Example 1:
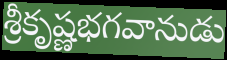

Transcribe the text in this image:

శ్రీకృష్ణభగవానుడు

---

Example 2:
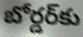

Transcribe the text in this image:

బోర్డర్‌కు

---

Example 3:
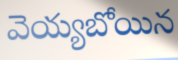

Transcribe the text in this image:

వెయ్యబోయిన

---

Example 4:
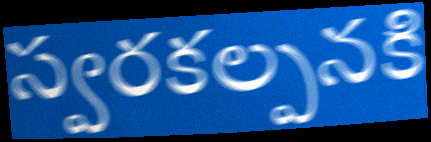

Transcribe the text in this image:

స్వరకల్పనకి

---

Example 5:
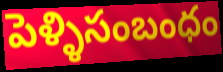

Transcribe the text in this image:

పెళ్ళిసంబంధం